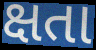
ક્ષતા